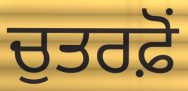
ਚੁਤਰਫ਼ੋਂ